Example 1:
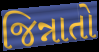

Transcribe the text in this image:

જિન્નાતો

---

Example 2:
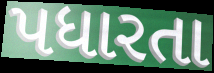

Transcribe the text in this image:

પધારતા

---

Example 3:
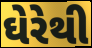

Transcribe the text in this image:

ઘેરેથી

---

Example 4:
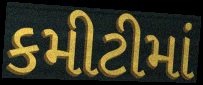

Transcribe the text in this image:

કમીટીમાં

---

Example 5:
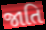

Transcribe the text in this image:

જાતિ